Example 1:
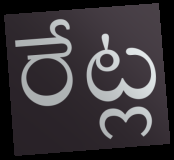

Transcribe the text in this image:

రేట్ల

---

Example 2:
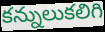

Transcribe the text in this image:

కన్నులుకలిగి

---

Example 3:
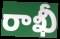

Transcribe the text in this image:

రాఖీ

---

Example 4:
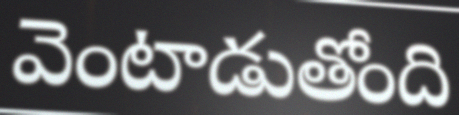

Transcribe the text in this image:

వెంటాడుతోంది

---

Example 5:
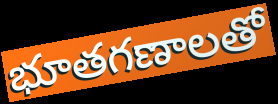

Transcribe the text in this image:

భూతగణాలతో